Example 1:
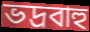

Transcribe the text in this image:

ভদ্রবাহু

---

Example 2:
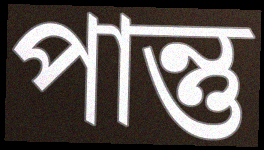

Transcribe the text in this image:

পান্তু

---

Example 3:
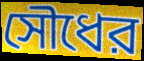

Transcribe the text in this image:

সৌধের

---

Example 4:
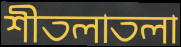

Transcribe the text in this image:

শীতলাতলা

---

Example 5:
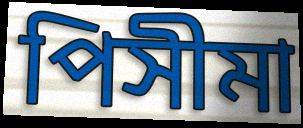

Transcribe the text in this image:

পিসীমা